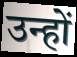
उन्हों